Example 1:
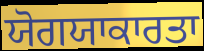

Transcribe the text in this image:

ਯੋਗਯਾਕਾਰਤਾ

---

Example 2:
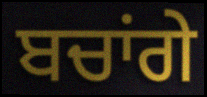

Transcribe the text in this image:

ਬਚਾਂਗੇ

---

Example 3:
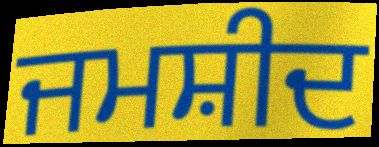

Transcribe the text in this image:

ਜਮਸ਼ੀਦ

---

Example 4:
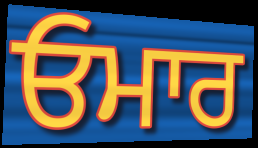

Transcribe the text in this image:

ਓਮਾਰ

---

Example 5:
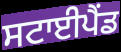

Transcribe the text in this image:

ਸਟਾਈਪੈਂਡ